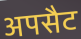
अपसैट